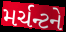
મર્ચન્ટને